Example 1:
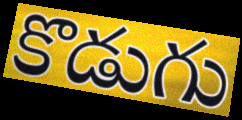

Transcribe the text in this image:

కొడుగు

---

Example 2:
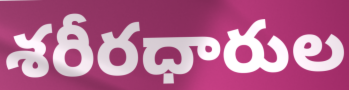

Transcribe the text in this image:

శరీరధారుల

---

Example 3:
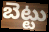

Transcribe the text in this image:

బెట్టు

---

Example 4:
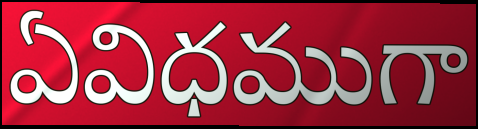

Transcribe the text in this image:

ఏవిధముగా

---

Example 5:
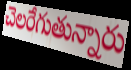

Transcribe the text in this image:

చెలరేగుతున్నారు